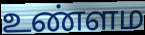
உண்ளம